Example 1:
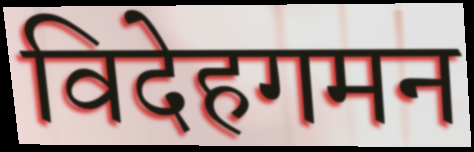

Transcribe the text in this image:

विदेहगमन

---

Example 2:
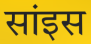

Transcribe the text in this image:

सांइस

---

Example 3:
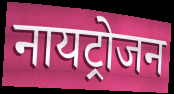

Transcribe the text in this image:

नायट्रोजन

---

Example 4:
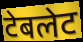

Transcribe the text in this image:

टेबलेट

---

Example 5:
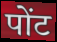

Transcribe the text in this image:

पोंट